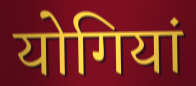
योगियां